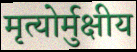
मृत्‍योर्मुक्षीय